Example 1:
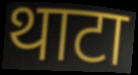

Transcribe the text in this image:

थाटा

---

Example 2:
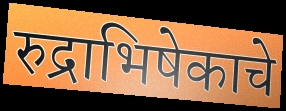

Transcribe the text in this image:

रुद्राभिषेकाचे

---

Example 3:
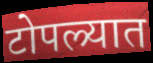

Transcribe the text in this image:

टोपल्यात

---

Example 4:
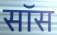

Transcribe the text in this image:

सॉस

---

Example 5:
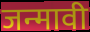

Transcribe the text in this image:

जन्मावी